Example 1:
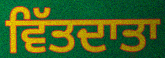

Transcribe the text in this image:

ਵਿੱਤਦਾਤਾ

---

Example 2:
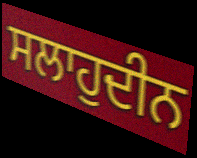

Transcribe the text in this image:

ਸਲਾਹੁਦੀਨ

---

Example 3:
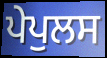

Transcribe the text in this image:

ਪੇਪੁਲਸ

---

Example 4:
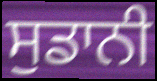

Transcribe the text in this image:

ਸੁਡਾਨੀ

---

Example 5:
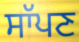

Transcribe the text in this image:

ਸਾੱਪਣ